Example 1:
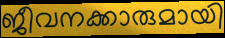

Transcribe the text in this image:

ജീവനക്കാരുമായി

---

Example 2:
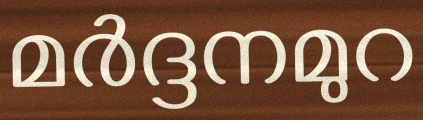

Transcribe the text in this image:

മർദ്ദനമുറ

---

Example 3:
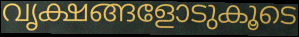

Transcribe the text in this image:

വൃക്ഷങ്ങളോടുകൂടെ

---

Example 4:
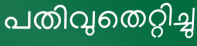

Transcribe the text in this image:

പതിവുതെറ്റിച്ചു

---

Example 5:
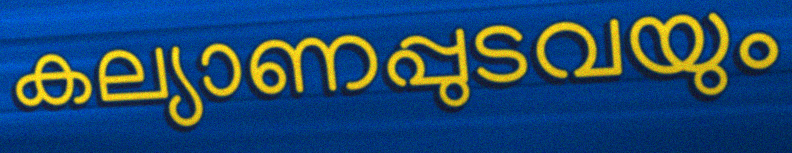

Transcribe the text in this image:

കല്യാണപ്പുടവയും